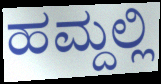
ಹಮ್ದಲ್ಲಿ